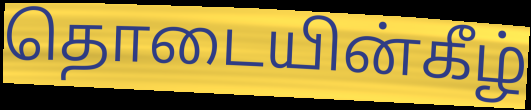
தொடையின்கீழ்